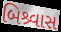
બિશ્ર્વાસ